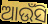
ଆଉଁସି